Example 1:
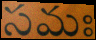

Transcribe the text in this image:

సమః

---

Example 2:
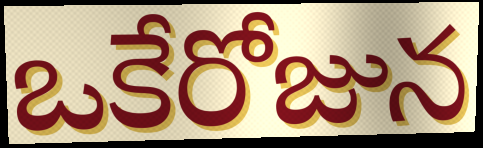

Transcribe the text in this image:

ఒకేరోజున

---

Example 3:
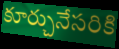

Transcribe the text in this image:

కూర్చునేసరికి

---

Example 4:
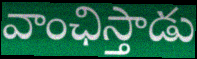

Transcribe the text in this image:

వాంఛిస్తాడు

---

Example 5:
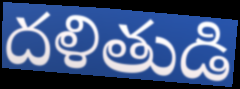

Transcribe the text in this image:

దళితుడి